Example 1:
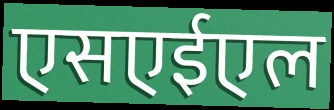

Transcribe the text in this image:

एसएईएल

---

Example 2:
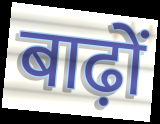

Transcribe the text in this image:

बाढ़ों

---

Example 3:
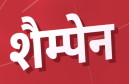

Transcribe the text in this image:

शैम्पेन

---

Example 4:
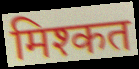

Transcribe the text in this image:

मिश्कत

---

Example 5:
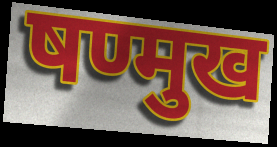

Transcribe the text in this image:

षण्मुख